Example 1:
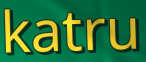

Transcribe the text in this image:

katru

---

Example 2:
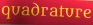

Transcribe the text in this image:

quadrature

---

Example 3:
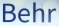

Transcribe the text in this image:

Behr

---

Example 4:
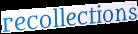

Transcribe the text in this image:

recollections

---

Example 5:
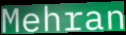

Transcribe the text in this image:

Mehran